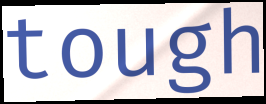
tough